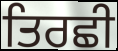
ਤਿਰਛੀ